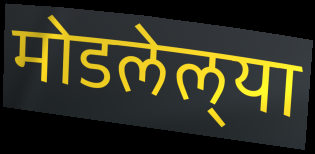
मोडलेल्या